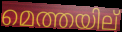
മെത്തയില്